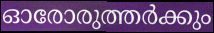
ഓരോരുത്തർക്കും